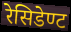
रेसिडेण्ट